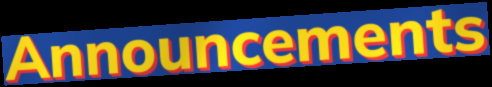
Announcements